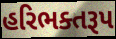
હરિભક્તરૂપ